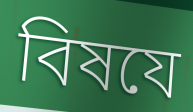
বিষযে